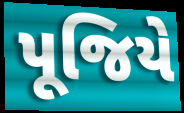
પૂજિયે